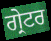
ਗ੍ਰੇਟਰ